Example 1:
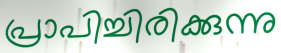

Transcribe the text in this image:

പ്രാപിച്ചിരിക്കുന്നു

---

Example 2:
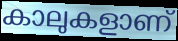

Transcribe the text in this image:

കാലുകളാണ്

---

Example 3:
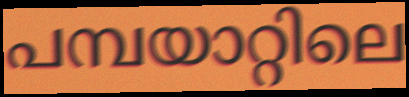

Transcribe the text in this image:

പമ്പയാറ്റിലെ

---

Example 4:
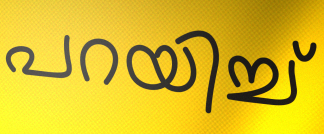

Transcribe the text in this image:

പറയിച്ച്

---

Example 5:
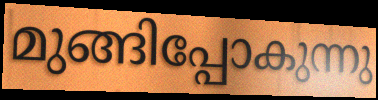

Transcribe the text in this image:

മുങ്ങിപ്പോകുന്നു